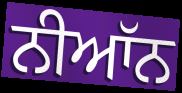
ਨੀਆੱਨ